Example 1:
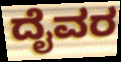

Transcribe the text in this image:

ದೈವರ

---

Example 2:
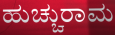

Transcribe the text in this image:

ಹುಚ್ಚುರಾಮ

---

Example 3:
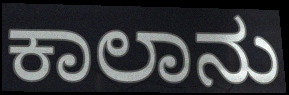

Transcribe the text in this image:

ಕಾಲಾನು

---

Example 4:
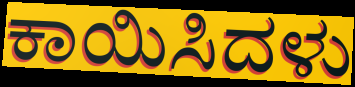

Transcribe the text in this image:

ಕಾಯಿಸಿದಳು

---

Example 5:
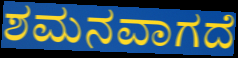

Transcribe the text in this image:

ಶಮನವಾಗದೆ